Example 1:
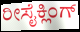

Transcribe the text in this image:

ರೀಸೈಕ್ಲಿಂಗ್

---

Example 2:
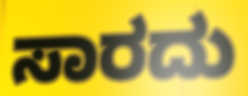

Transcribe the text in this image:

ಸಾರದು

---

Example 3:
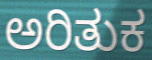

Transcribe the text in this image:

ಅರಿತುಕ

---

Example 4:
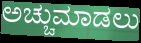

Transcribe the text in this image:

ಅಚ್ಚುಮಾಡಲು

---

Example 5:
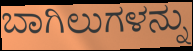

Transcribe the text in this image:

ಬಾಗಿಲುಗಳನ್ನು